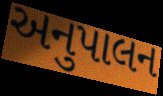
અનુપાલન